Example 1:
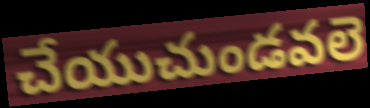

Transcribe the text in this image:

చేయుచుండవలె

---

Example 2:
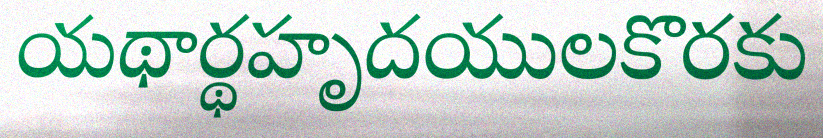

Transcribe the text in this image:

యథార్థహృదయులకొరకు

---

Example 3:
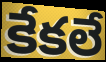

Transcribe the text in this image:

కేకలే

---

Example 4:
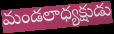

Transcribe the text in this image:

మండలాధ్యక్షుడు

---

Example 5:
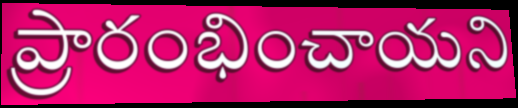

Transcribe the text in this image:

ప్రారంభించాయని